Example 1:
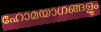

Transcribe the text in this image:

ഹോമയാഗങ്ങളും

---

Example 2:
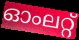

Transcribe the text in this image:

ഓംലറ്റ്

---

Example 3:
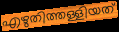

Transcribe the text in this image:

എഴുതിത്തള്ളിയത്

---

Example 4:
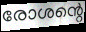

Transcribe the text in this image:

രോശന്റെ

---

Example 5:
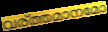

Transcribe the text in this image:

വര്ത്തമാനമോ